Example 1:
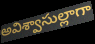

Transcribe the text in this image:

అవిశ్వాసుల్లాగా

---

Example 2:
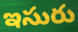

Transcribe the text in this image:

ఇసురు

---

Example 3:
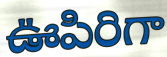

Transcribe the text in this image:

ఊపిరిగా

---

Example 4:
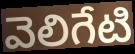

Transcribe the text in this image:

వెలిగేటి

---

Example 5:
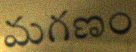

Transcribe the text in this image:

మగణం